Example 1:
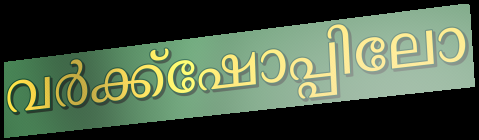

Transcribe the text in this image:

വർക്ക്ഷോപ്പിലോ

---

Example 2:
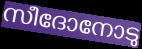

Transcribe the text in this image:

സീദോനോടു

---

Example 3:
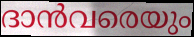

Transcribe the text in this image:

ദാൻവരെയും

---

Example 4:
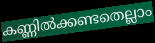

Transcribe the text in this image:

കണ്ണിൽക്കണ്ടതെല്ലാം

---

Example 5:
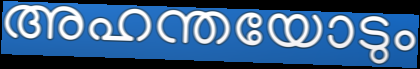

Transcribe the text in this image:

അഹന്തയോടും